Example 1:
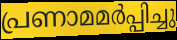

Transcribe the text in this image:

പ്രണാമമർപ്പിച്ചു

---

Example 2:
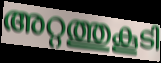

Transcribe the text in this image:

അറ്റത്തുകൂടി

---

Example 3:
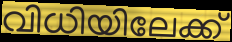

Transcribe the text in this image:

വിധിയിലേക്ക്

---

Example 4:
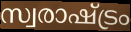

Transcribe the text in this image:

സ്വരാഷ്ട്രം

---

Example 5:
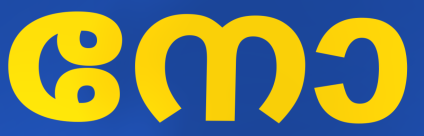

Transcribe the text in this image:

നോ